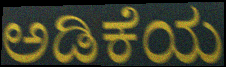
ಅಡಿಕೆಯ